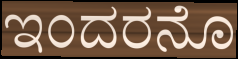
ಇಂದರನೊ